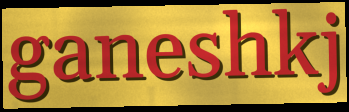
ganeshkj